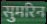
सुमरिन